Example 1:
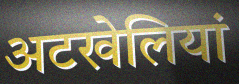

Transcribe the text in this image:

अटखेलियां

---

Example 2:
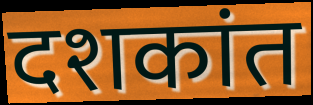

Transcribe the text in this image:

दशकांत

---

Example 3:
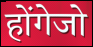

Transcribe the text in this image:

होंगेजो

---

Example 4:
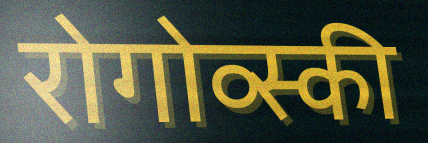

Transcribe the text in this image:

रोगोव्स्की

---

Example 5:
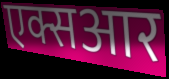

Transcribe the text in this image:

एक्सआर